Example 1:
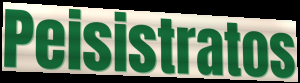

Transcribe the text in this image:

Peisistratos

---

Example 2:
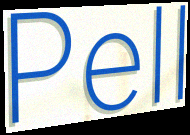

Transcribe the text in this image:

Pell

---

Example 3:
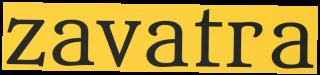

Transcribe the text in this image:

zavatra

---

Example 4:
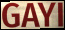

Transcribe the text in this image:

GAYI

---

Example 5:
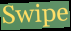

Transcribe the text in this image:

Swipe